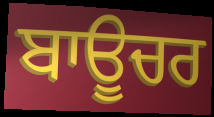
ਬਾਊਚਰ